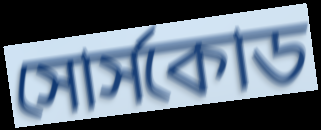
সোর্সকোড